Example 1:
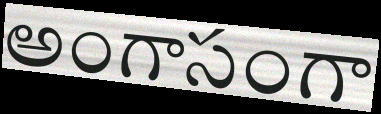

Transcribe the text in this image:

అంగాసంగా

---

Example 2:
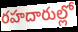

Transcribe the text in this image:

రహదారుల్లో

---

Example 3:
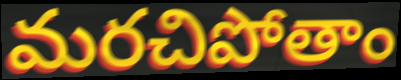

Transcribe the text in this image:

మరచిపోతాం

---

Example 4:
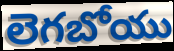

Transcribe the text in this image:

లెగబోయు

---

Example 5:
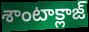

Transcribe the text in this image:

శాంటాక్లాజ్